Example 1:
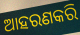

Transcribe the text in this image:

ଆହରଣକରି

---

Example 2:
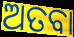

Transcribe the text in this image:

ଅତବା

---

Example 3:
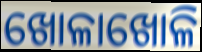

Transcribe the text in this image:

ଖୋଳାଖୋଳି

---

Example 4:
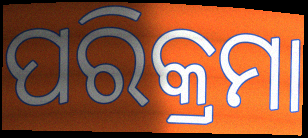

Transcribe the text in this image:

ପରିକ୍ରମା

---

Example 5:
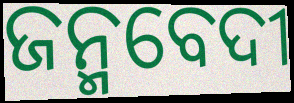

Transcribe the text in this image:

ଜନ୍ମବେଦୀ